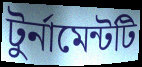
টুর্নামেন্টটি